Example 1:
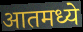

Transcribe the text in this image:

आतमध्ये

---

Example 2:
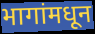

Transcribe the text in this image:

भागांमधून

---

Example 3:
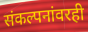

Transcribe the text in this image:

संकल्पनांवरही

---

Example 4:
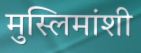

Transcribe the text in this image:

मुस्लिमांशी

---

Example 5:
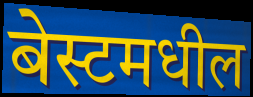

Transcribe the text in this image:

बेस्टमधील